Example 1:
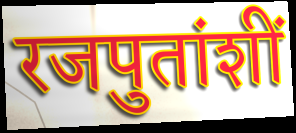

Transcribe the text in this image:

रजपुतांशीं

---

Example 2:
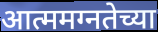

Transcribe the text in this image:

आत्ममग्नतेच्या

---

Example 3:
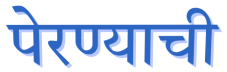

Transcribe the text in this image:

पेरण्याची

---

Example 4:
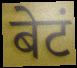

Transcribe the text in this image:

बेटं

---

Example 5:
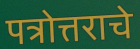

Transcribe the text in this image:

पत्रोत्तराचे